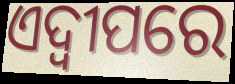
ଏଦ୍ୱୀପରେ